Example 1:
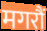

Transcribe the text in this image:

मगरौं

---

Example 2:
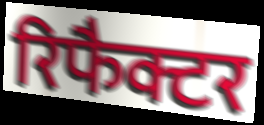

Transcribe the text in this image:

रिफैक्टर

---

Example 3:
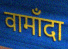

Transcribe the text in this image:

वामाँदा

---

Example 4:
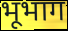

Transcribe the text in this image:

भूभाग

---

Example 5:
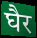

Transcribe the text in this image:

घैर